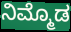
ನಿಮ್ಮೊಡ